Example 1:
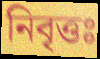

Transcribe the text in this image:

নিবৃত্তঃ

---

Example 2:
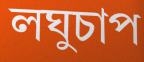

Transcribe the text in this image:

লঘুচাপ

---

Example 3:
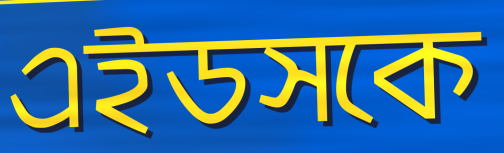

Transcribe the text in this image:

এইডসকে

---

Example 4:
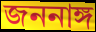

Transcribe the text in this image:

জননাঙ্গ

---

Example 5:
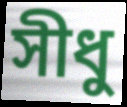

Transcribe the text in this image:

সীধু